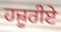
ਹਜ਼ੂਰੀਏ